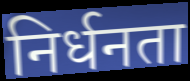
निर्धनता